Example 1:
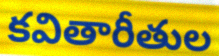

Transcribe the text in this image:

కవితారీతుల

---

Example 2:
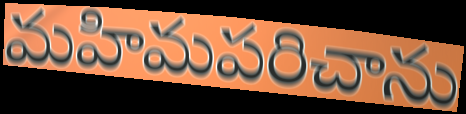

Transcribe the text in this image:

మహిమపరిచాను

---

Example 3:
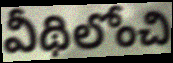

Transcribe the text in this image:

వీథిలోంచి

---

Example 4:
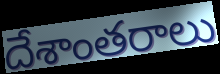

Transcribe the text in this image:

దేశాంతరాలు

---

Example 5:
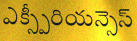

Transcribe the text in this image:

ఎక్స్పీరియన్సెస్